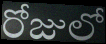
రోజులో